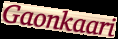
Gaonkaari